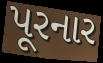
પૂરનાર